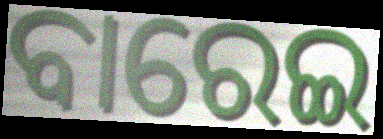
ବାରେଇ